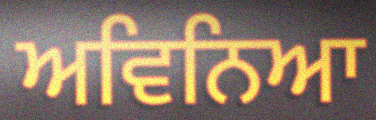
ਅਵਿਨਿਆ